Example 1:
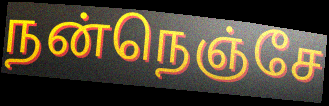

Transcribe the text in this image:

நன்நெஞ்சே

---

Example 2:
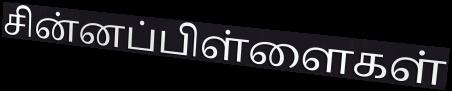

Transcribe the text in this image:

சின்னப்பிள்ளைகள்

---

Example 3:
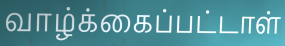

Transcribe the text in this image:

வாழ்க்கைப்பட்டாள்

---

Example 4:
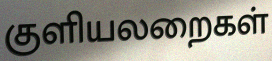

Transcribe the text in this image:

குளியலறைகள்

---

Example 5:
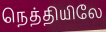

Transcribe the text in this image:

நெத்தியிலே